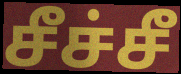
சீச்சீ